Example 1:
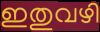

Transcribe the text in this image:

ഇതുവഴി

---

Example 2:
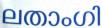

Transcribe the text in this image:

ലതാംഗി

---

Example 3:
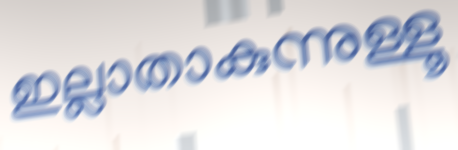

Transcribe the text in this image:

ഇല്ലാതാകുന്നുള്ളൂ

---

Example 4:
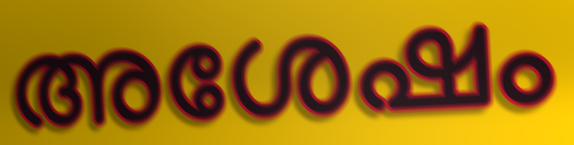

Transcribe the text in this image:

അശേഷം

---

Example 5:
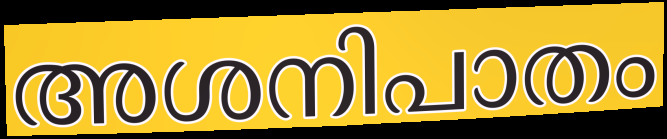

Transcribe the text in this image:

അശനിപാതം